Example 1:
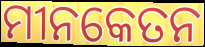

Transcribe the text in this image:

ମୀନକେତନ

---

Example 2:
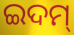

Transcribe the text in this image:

ଇଦମ୍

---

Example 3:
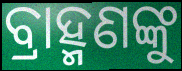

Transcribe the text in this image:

ବ୍ରାହ୍ମଣଙ୍କୁ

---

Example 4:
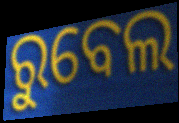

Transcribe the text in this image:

ରୁବେଲ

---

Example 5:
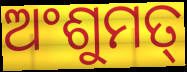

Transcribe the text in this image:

ଅଂଶୁମତ୍